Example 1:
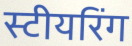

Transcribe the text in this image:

स्टीयरिंग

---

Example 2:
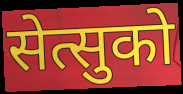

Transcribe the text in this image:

सेत्सुको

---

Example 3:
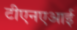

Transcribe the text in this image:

टीएनएआई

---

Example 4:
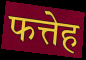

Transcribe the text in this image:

फत्तेह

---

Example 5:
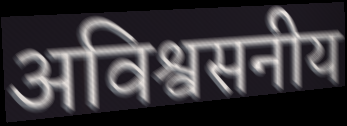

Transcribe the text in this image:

अविश्वसनीय